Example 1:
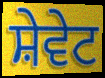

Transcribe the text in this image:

ਸ਼ੇਵੇਟ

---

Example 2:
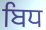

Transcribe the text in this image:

ਬਿਧ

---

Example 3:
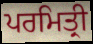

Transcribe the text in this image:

ਪਰਮਿਤ੍ਰੀ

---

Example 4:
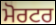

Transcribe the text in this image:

ਮੋਰਟਰ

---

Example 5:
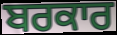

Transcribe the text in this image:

ਬਰਕਾਰ